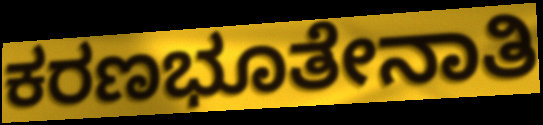
ಕರಣಭೂತೇನಾತಿ